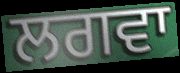
ਲਗਵਾ